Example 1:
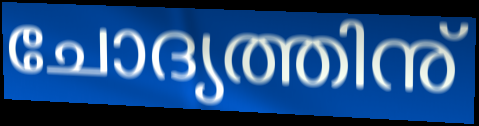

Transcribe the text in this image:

ചോദ്യത്തിനു്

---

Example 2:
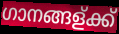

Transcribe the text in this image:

ഗാനങ്ങള്ക്ക്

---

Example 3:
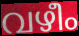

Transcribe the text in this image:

വഴീം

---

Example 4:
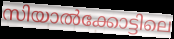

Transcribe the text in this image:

സിയാൽക്കോട്ടിലെ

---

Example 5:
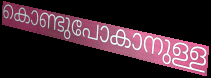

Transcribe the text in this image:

കൊണ്ടുപോകാനുള്ള